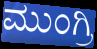
ಮುಂಗ್ರಿ